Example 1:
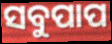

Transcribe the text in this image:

ସବୁପାପ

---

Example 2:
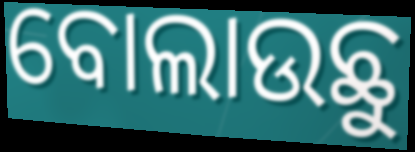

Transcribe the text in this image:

ବୋଲାଉଛୁ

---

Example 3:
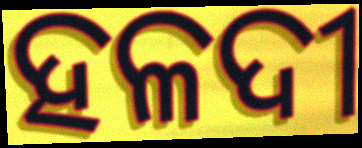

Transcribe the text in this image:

ହଳଦୀ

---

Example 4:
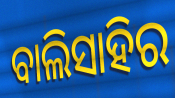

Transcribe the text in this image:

ବାଲିସାହିର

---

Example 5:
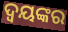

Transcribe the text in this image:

ଦ୍ବୟଙ୍କର